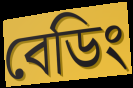
বেডিং